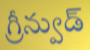
గ్రీన్వుడ్